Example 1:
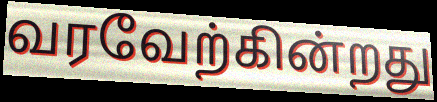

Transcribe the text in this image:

வரவேற்கின்றது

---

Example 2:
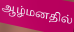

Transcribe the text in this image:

ஆழ்மனதில்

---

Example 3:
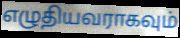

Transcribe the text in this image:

எழுதியவராகவும்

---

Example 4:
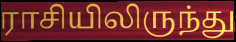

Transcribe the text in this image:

ராசியிலிருந்து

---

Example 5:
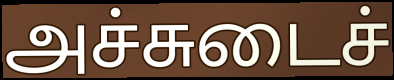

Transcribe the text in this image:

அச்சுடைச்